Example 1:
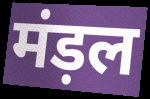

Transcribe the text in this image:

मंड़ल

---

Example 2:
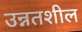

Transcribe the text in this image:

उन्नतशील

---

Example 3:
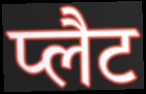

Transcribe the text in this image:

प्लैट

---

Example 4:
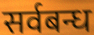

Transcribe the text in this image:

सर्वबन्ध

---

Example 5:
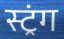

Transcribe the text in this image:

स्ट्रंग